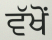
ਵੱਖੋਂ